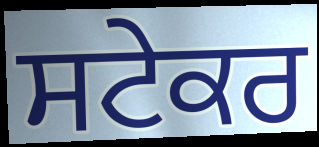
ਸਟੇਕਰ